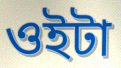
ওইটা